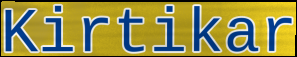
Kirtikar